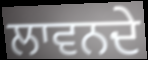
ਲਾਵਨਦੇ